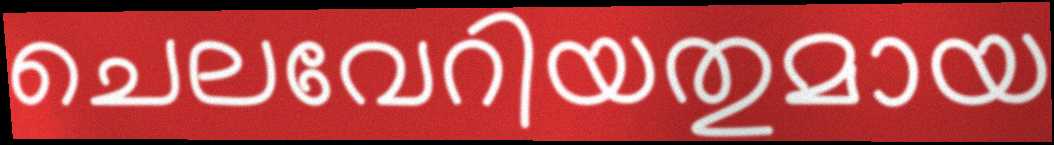
ചെലവേറിയതുമായ